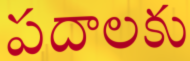
పదాలకు